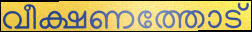
വീക്ഷണത്തോട്